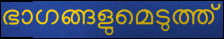
ഭാഗങ്ങളുമെടുത്ത്